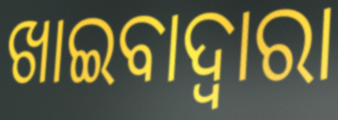
ଖାଇବାଦ୍ୱାରା